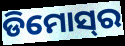
ଡିମୋସ୍‌ର